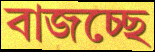
বাজচ্ছে